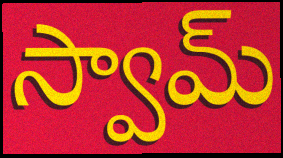
స్వామ్